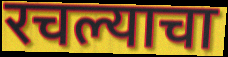
रचल्याचा